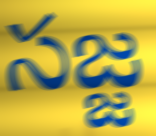
సజ్జ